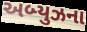
અબ્યુઝના